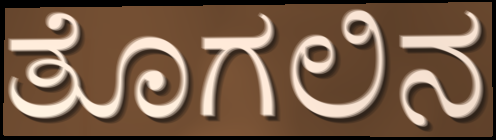
ತೊಗಲಿನ